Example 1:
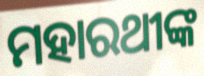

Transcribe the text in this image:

ମହାରଥୀଙ୍କ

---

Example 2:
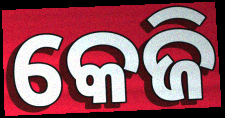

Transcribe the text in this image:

କେଜି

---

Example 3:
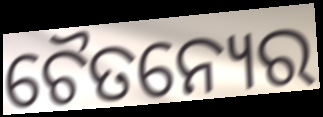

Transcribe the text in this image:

ଚୈତନ୍ୟେର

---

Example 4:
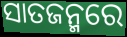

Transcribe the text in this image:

ସାତଜନ୍ମରେ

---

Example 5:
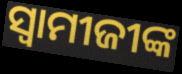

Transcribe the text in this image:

ସ୍ଵାମୀଜୀଙ୍କ